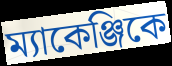
ম্যাকেঞ্জিকে